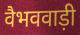
वैभववाड़ी